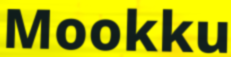
Mookku